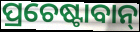
ପ୍ରଚେଷ୍ଟାବାନ୍